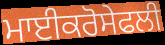
ਮਾਈਕਰੋਸੇਫਲੀ